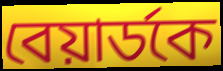
বেয়ার্ডকে